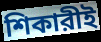
শিকারীই